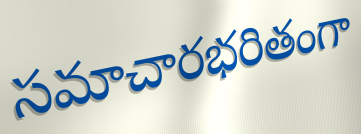
సమాచారభరితంగా